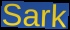
Sark